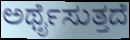
ಅರ್ಥೈಸುತ್ತದೆ